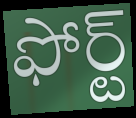
ఫోర్ట్